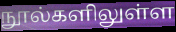
நூல்களிலுள்ள